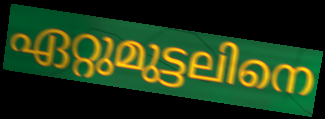
ഏറ്റുമുട്ടലിനെ